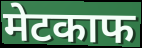
मेटकाफ